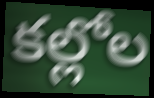
కల్లోల